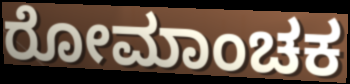
ರೋಮಾಂಚಕ